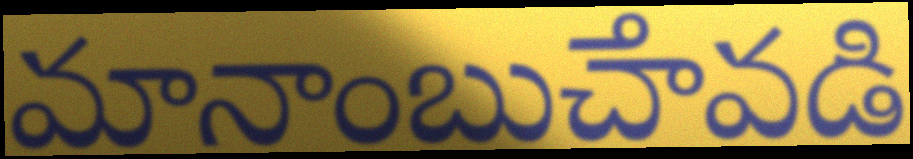
మానాంబుౘావడి